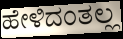
ಹೇಳಿದಂತಲ್ಲ